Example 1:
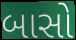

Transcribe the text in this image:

બાસો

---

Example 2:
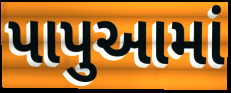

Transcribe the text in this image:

પાપુઆમાં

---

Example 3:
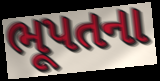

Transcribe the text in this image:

ભૂપતના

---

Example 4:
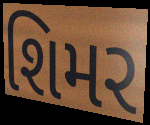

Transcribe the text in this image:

શિમર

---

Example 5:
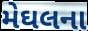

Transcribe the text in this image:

મેઘલના